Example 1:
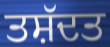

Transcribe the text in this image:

ਤਸ਼ੱਦਤ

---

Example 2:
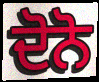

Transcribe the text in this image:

ਦੋਨੋ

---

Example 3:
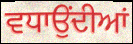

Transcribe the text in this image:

ਵਧਾਉਂਦੀਆਂ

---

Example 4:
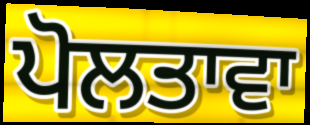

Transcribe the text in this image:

ਪੋਲਤਾਵਾ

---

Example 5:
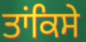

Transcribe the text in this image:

ਤਾਂਕਿਸੇ